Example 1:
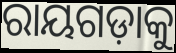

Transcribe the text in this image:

ରାୟଗଡ଼ାକୁ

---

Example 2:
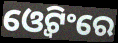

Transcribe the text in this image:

ଓ୍ୱେଟିଂରେ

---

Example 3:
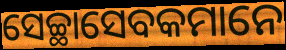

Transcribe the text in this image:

ସେଚ୍ଛାସେବକମାନେ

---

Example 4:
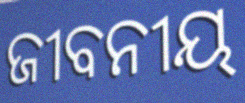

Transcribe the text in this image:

ଜୀବନୀୟ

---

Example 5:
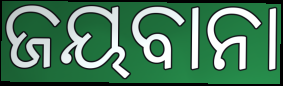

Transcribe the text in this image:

ଜୟବାନା